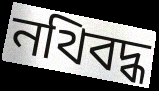
নথিবদ্ধ